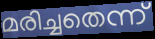
മരിച്ചതെന്ന്